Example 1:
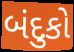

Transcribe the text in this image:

બંદુકો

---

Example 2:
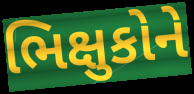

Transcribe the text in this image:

ભિક્ષુકોને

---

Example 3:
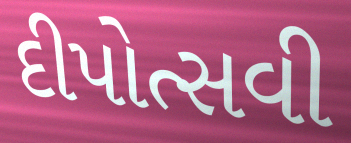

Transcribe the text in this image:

દીપોત્સવી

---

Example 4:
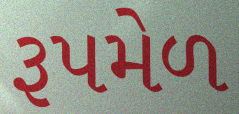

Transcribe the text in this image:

રૂપમેળ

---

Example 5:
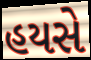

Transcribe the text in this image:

હયસે